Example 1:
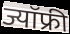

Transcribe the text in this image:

ज्यॉफ्री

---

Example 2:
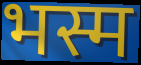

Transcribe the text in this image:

भस्म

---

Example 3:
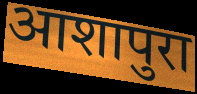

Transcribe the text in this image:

आशापुरा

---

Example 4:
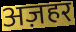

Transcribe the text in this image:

अज़हर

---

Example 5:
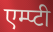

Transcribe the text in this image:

एम्प्टी